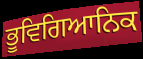
ਭੂਵਿਗਿਆਨਿਕ